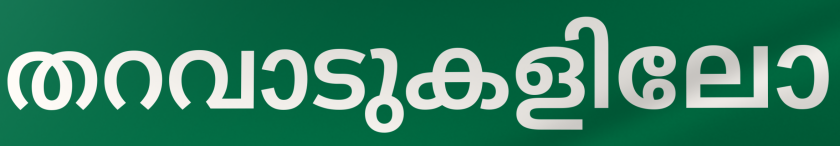
തറവാടുകളിലോ